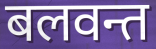
बलवन्‍त